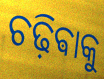
ଚଢ଼ିଵାକୁ